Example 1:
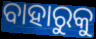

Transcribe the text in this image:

ବାହାରୁକୁ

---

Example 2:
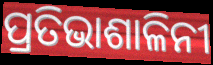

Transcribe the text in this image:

ପ୍ରତିଭାଶାଳିନୀ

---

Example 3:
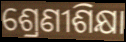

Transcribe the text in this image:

ଶ୍ରେଣୀଶିକ୍ଷା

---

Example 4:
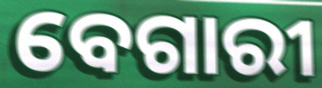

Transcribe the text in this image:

ବେଗାରୀ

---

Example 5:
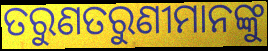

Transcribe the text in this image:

ତରୁଣତରୁଣୀମାନଙ୍କୁ